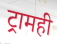
ट्रामही